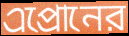
এপ্রোনের